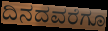
ದಿನದವರೆಗೂ